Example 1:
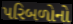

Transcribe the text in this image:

પરિબળોનો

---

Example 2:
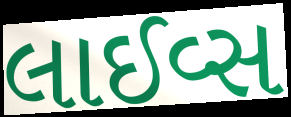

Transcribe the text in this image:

લાઈવ્સ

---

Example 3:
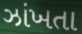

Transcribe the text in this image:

ઝાંખતા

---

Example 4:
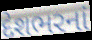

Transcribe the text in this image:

દેશભરનાં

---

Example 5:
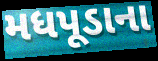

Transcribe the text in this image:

મધપૂડાના